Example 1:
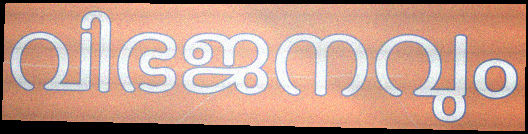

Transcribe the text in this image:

വിഭജനവും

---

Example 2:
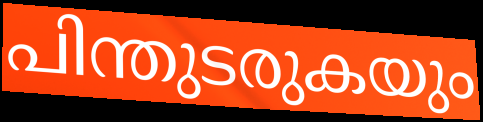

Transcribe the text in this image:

പിന്തുടരുകയും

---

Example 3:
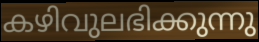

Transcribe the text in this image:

കഴിവുലഭിക്കുന്നു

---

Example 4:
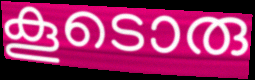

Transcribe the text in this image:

കൂടൊരു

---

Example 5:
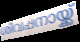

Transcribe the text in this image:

ശിവപ്പനായ്ക്ക്